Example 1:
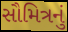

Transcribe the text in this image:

સૌમિત્રનું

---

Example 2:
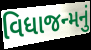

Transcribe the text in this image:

વિધાજન્મનું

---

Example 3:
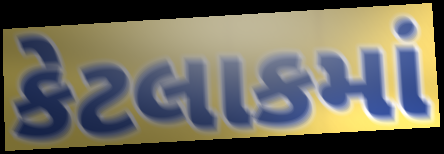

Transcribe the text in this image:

કેટલાકમાં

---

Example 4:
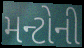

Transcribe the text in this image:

મન્ટોની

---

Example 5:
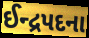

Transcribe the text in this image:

ઈન્દ્રપદના